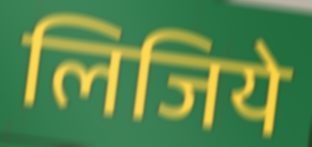
लिजिये